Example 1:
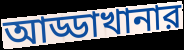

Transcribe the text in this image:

আড্ডাখানার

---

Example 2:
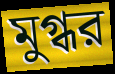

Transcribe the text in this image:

মুগ্ধর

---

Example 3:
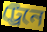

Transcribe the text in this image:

ট্রেনে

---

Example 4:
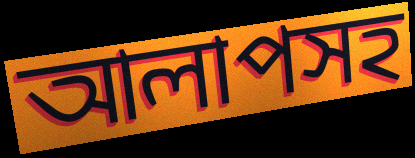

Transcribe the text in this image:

আলাপসহ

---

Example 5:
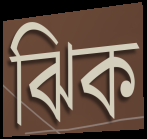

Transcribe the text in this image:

ঝিক